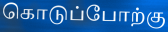
கொடுப்போற்கு